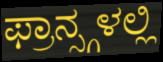
ಫ್ರಾನ್ಸ್ಗಳಲ್ಲಿ